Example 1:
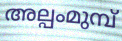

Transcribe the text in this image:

അല്പംമുമ്പ്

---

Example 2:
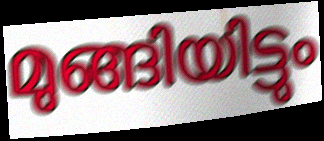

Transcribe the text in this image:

മുങ്ങിയിട്ടും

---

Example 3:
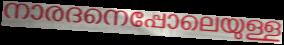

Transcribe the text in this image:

നാരദനെപ്പോലെയുള്ള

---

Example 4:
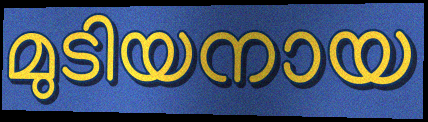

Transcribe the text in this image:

മുടിയനായ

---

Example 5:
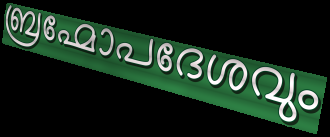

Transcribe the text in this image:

ബ്രഹ്മോപദേശവും